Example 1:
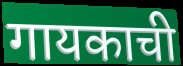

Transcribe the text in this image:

गायकाची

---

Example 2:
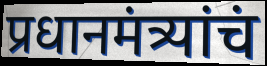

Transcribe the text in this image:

प्रधानमंत्र्यांचं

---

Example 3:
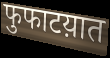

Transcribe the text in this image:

फुफाटय़ात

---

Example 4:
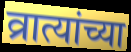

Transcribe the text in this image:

व्रात्यांच्या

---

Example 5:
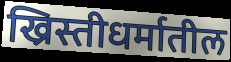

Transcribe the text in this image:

ख्रिस्तीधर्मातील